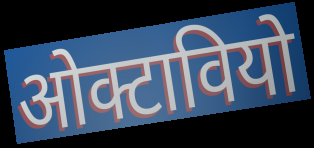
ओक्टावियो